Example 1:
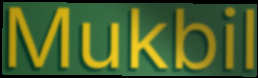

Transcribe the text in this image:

Mukbil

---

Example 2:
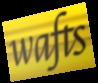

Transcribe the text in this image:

wafts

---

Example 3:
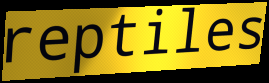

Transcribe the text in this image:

reptiles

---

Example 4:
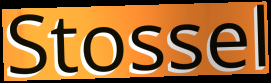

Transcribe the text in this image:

Stossel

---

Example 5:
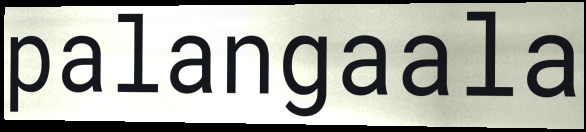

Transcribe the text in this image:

palangaala